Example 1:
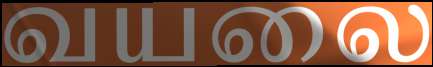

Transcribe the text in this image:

வயலை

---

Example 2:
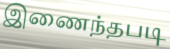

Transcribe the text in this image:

இணைந்தபடி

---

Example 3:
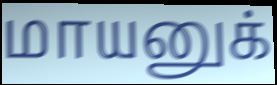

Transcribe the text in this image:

மாயனுக்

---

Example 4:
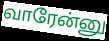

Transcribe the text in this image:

வாரேன்னு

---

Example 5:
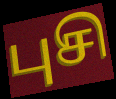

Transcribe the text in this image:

புசி